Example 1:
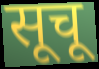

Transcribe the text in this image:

सूचू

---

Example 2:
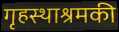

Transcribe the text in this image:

गृहस्थाश्रमकी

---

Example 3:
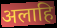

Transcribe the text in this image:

अलाहि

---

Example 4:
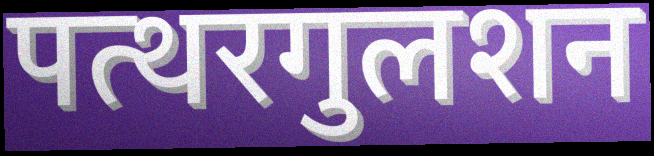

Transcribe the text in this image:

पत्थरगुलशन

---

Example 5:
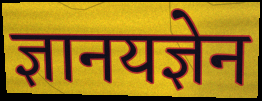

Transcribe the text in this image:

ज्ञानयज्ञेन